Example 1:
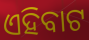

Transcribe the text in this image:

ଏହିବାଟ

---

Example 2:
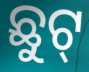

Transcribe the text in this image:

ଛୁଟ୍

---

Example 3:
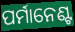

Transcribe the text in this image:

ପର୍ମାନେଣ୍ଟ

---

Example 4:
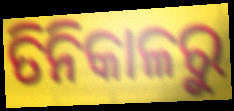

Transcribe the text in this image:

ତିନିକାଳରୁ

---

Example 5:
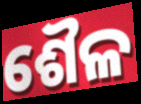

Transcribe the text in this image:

ଶୈଳ